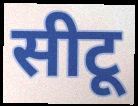
सीटू